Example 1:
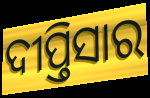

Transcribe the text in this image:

ଦୀପ୍ତିସାର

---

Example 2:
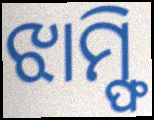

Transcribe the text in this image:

ଝାମ୍ଫି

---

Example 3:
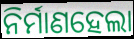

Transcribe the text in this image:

ନିର୍ମାଣହେଲା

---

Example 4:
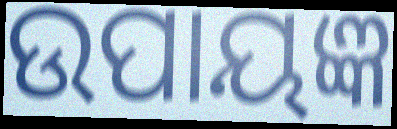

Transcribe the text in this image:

ଉପାୟଜ୍ଞ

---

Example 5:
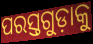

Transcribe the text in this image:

ପରସ୍ତଗୁଡ଼ାକୁ